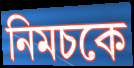
নিমচকে